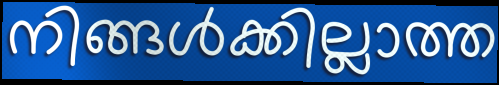
നിങ്ങൾക്കില്ലാത്ത